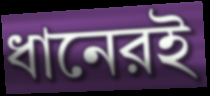
ধানেরই